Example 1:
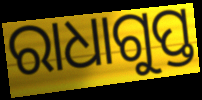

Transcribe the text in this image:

ରାଧାଗୁପ୍ତ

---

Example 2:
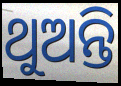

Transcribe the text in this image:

ଥୁଅନ୍ତି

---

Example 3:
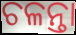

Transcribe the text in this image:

ଚଳନ୍ତା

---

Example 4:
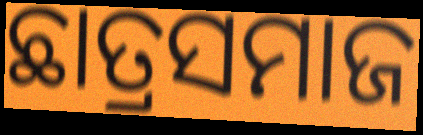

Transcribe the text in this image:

ଛାତ୍ରସମାଜ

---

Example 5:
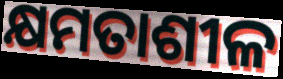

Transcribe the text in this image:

କ୍ଷମତାଶୀଳ